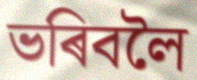
ভৰিবলৈ